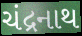
ચંદ્રનાથ